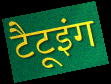
टैटूइंग